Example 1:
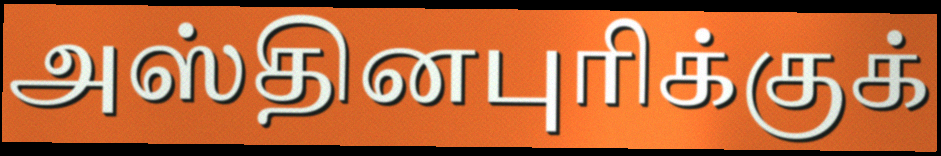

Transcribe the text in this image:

அஸ்தினபுரிக்குக்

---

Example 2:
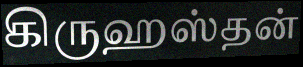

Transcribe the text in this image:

கிருஹஸ்தன்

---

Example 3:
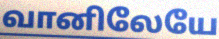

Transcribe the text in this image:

வானிலேயே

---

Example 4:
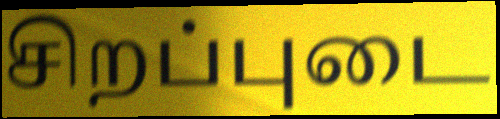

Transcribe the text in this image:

சிறப்புடை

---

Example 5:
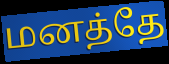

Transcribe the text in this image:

மனத்தே